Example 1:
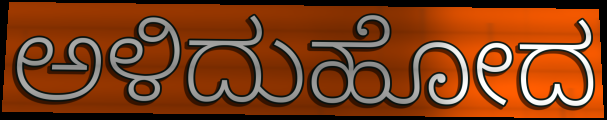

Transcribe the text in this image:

ಅಳಿದುಹೋದ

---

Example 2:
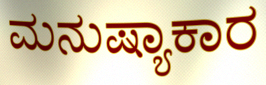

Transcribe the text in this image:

ಮನುಷ್ಯಾಕಾರ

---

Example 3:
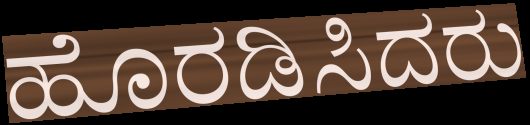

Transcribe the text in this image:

ಹೊರಡಿಸಿದರು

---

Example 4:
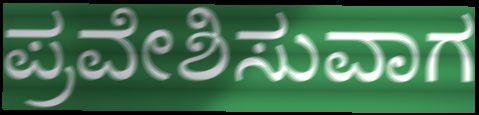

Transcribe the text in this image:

ಪ್ರವೇಶಿಸುವಾಗ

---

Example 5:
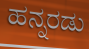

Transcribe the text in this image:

ಹನ್ನರಡು